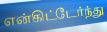
என்கிட்டேர்ந்து